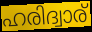
ഹരിദ്വാര്